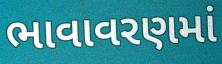
ભાવાવરણમાં